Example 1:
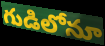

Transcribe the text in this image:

గుడిలోనూ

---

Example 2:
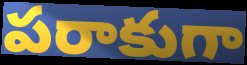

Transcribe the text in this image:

పరాకుగా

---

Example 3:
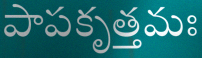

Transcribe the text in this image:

పాపకృత్తమః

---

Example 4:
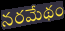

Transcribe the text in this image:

నరమేథం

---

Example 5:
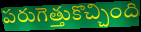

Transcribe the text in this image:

పరుగెత్తుకొచ్చింది